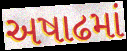
અષાઢમાં